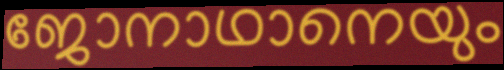
ജോനാഥാനെയും